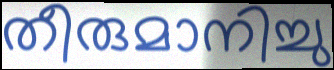
തീരുമാനിച്ചു